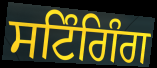
ਸਟਿੰਗਿੰਗ